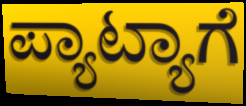
ಪ್ಯಾಟ್ಯಾಗೆ